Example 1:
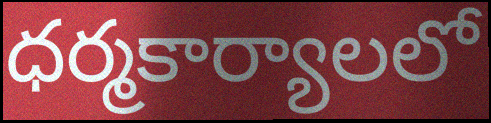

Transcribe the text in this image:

ధర్మకార్యాలలో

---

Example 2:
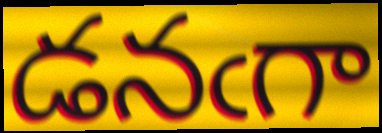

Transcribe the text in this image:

డనఁగా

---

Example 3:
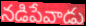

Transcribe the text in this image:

నడిపేవాడు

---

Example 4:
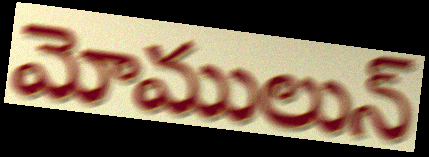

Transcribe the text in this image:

మోములున్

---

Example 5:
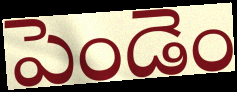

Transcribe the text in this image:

పెండెం